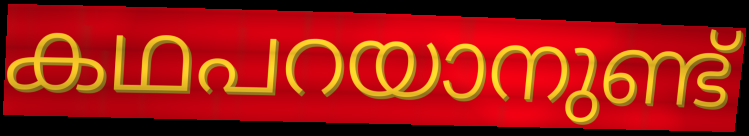
കഥപറയാനുണ്ട്